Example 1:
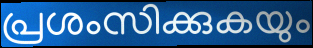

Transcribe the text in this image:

പ്രശംസിക്കുകയും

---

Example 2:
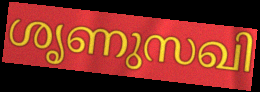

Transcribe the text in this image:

ശൃണുസഖി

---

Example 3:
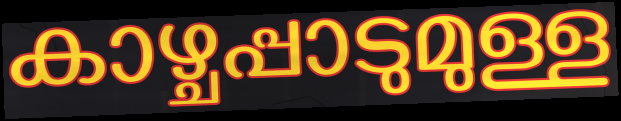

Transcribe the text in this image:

കാഴ്ചപ്പാടുമുള്ള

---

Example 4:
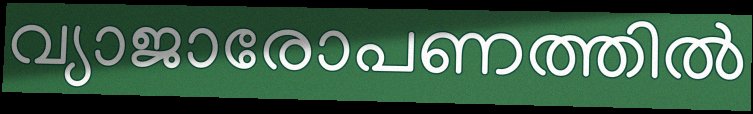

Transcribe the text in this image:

വ്യാജാരോപണത്തിൽ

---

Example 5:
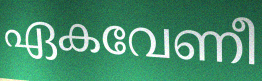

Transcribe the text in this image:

ഏകവേണീ